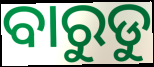
ବାରୁଡୁ